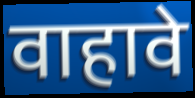
वाहावे